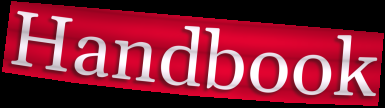
Handbook